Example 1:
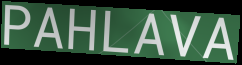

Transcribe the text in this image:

PAHLAVA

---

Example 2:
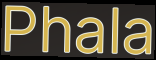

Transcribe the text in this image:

Phala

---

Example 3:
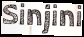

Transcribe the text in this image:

Sinjini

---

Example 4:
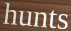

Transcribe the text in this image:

hunts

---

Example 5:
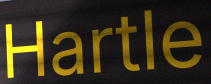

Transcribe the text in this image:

Hartle